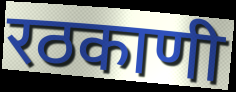
रठकाणी